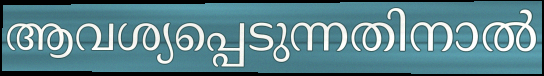
ആവശ്യപ്പെടുന്നതിനാൽ